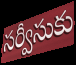
సర్వీసుకు